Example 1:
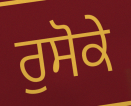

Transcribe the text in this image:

ਰੁਸੋਕੇ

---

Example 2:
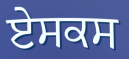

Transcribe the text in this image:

ਏਸਕਸ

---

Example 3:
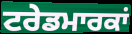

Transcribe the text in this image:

ਟਰੇਡਮਾਰਕਾਂ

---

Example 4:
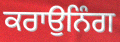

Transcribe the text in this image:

ਕਰਾਉਨਿੰਗ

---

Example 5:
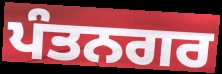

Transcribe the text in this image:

ਪੰਤਨਗਰ